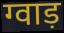
ग्वाड़